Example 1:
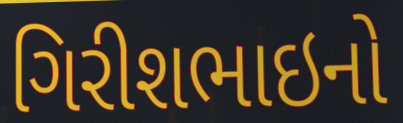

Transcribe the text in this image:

ગિરીશભાઇનો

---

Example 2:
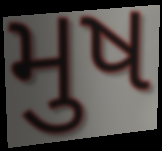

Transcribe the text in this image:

મુષ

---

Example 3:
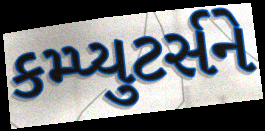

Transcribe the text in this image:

કમ્પ્યુટર્સને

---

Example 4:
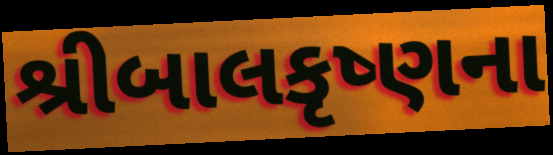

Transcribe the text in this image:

શ્રીબાલકૃષ્ણના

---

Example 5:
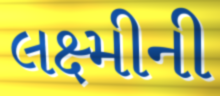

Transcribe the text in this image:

લક્ષ્મીની